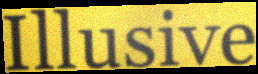
Illusive